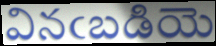
వినఁబడియె